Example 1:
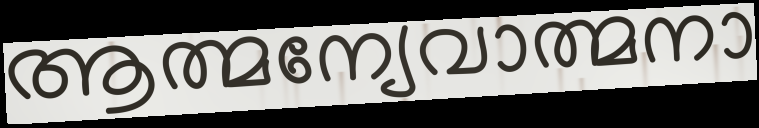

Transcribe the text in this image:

ആത്മന്യേവാത്മനാ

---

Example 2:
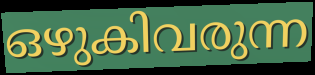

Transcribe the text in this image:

ഒഴുകിവരുന്ന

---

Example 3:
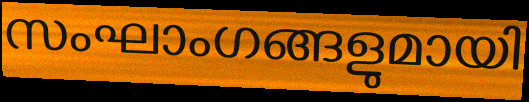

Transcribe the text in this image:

സംഘാംഗങ്ങളുമായി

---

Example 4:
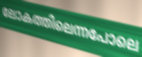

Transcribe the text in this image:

ലോകത്തിലെന്നപോലെ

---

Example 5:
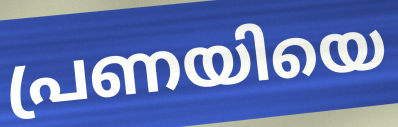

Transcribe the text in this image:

പ്രണയിയെ